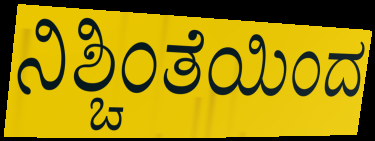
ನಿಶ್ಚಿಂತೆಯಿಂದ